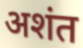
अशंत